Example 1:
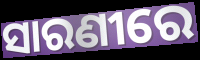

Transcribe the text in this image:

ସାରଣୀରେ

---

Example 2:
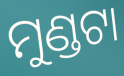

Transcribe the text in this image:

ମୁଣ୍ଡଟା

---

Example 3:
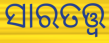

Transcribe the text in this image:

ସାରତତ୍ତ୍ଵ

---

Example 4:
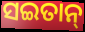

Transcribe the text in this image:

ସଇତାନ୍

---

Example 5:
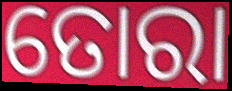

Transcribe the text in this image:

ତୋରା